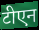
टीएन